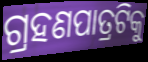
ଗ୍ରହଣପାତ୍ରଟିକୁ